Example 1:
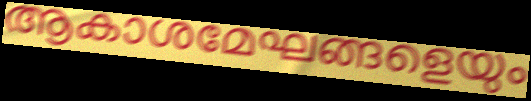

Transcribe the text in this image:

ആകാശമേഘങ്ങളെയും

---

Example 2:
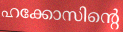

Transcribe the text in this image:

ഹക്കോസിന്റെ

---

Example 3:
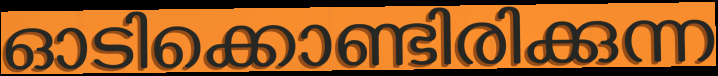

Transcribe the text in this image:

ഓടിക്കൊണ്ടിരിക്കുന്ന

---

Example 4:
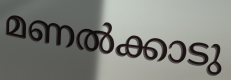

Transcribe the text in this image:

മണൽക്കാടു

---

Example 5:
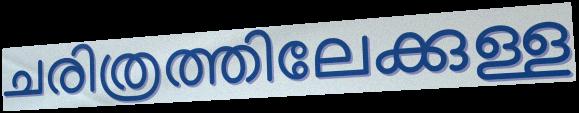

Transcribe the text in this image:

ചരിത്രത്തിലേക്കുള്ള